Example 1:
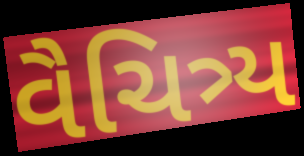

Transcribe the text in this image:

વૈચિત્ર્ય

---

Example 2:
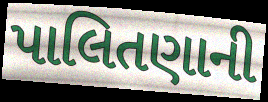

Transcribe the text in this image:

પાલિતણાની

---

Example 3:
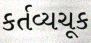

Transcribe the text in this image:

કર્તવ્યચૂક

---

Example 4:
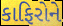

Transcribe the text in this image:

કાફિરોને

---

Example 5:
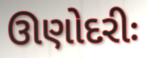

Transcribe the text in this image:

ઊણોદરીઃ